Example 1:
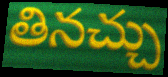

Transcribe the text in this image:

తినచ్చు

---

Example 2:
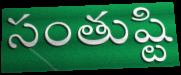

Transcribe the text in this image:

సంతుష్టి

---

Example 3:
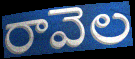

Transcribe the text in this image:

రావెల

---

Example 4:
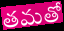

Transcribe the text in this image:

తమతో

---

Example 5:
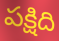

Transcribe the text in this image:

పక్షిది